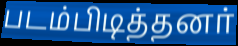
படம்பிடித்தனர்